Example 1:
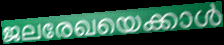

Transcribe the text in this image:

ജലരേഖയെക്കാൾ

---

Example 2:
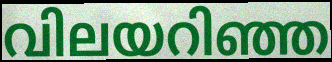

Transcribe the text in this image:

വിലയറിഞ്ഞ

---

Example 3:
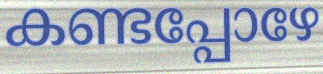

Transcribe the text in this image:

കണ്ടപ്പോഴേ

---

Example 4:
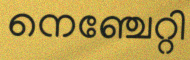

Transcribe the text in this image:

നെഞ്ചേറ്റി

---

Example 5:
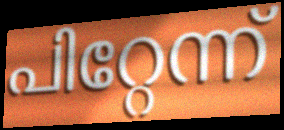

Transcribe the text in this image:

പിറ്റേന്ന്